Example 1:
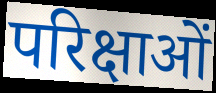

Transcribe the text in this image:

परिक्षाओं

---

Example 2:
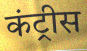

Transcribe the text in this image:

कंट्रीस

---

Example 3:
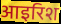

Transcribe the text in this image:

आइरिश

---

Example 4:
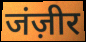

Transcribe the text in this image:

जंज़ीर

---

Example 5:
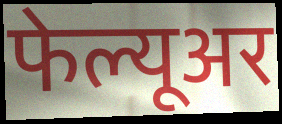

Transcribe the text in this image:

फेल्यूअर